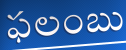
ఫలంబు